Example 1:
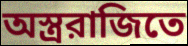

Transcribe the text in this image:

অস্ত্ররাজিতে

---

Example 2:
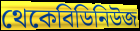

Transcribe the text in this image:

থেকেবিডিনিউজ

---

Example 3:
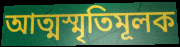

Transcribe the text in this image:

আত্মস্মৃতিমূলক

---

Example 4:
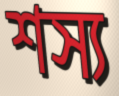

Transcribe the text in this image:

শস্য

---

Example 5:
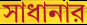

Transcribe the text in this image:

সাধানার